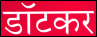
डॉटकर